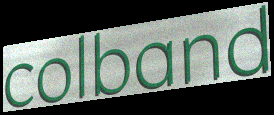
colband